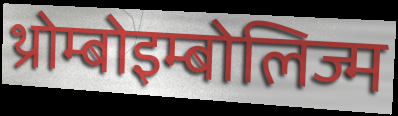
थ्रोम्बोइम्बोलिज्म